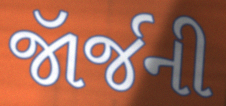
જૉર્જની